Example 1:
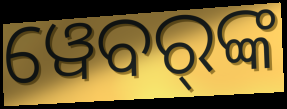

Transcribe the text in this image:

ୱେବର୍‌ଙ୍କ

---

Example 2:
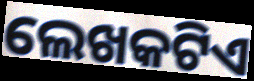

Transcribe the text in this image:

ଲେଖକଟିଏ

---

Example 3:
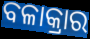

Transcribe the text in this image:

ବଳାକ୍ରାର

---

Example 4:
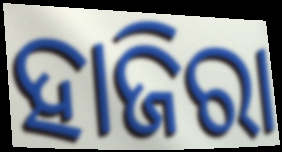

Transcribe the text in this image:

ହାଜିରା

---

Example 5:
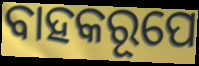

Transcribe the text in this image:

ବାହକରୂପେ